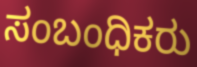
ಸಂಬಂಧಿಕರು